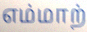
எம்மாற்